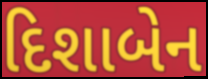
દિશાબેન